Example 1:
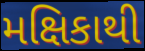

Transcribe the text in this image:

મક્ષિકાથી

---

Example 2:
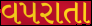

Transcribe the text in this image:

વપરાતા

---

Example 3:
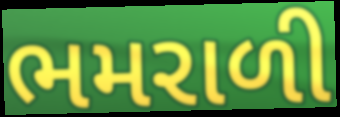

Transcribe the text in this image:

ભમરાળી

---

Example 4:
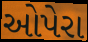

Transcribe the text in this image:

ઓપેરા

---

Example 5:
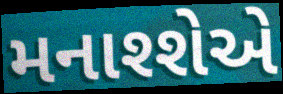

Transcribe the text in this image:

મનાશ્શેએ